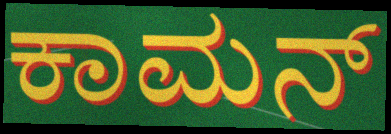
ಕಾಮನ್